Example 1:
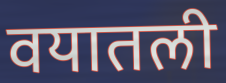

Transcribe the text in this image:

वयातली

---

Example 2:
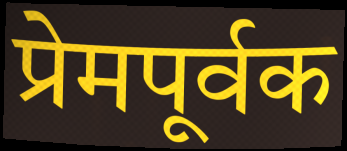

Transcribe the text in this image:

प्रेमपूर्वक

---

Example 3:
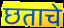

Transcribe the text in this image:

छताचे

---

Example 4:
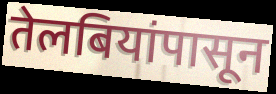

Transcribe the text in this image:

तेलबियांपासून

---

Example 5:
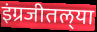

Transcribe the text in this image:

इंग्रजीतल्या